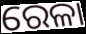
ରେଳା